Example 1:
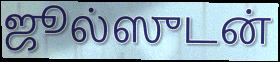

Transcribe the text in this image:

ஜூல்ஸுடன்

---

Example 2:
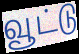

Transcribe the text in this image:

வூட்டு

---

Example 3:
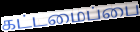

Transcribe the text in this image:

கட்டமைப்பை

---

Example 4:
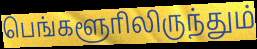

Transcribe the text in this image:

பெங்களூரிலிருந்தும்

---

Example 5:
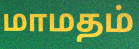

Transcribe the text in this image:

மாமதம்